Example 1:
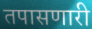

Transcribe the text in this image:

तपासणारी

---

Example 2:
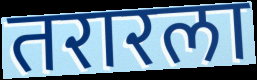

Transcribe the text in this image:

तरारला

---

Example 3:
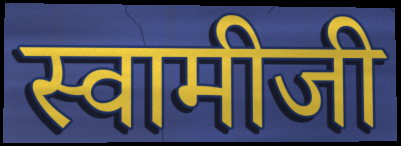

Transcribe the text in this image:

स्वामीजी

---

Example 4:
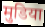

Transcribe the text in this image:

मुडिया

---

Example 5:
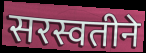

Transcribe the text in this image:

सरस्वतीने